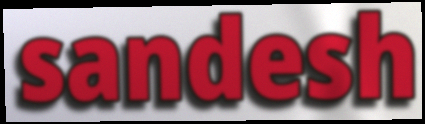
sandesh